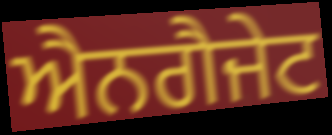
ਐਨਗੈਜੇਟ